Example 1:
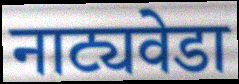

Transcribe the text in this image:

नाट्यवेडा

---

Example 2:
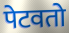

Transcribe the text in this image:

पेटवतो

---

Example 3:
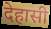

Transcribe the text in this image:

देहासी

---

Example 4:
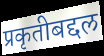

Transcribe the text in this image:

प्रकृतीबद्दल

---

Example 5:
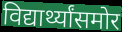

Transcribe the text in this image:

विद्यार्थ्यांसमोर